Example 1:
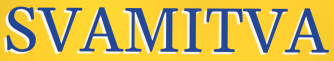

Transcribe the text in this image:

SVAMITVA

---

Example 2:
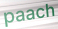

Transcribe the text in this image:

paach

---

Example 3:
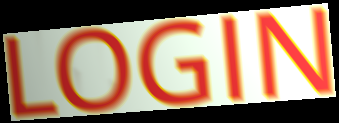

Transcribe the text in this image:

LOGIN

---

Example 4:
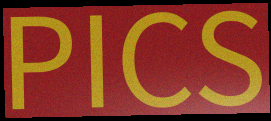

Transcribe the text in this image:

PICS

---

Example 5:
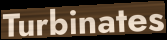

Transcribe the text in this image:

Turbinates